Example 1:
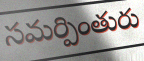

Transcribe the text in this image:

సమర్పింతురు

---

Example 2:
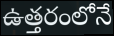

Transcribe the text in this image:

ఉత్తరంలోనే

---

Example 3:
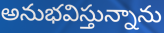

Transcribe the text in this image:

అనుభవిస్తున్నాను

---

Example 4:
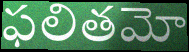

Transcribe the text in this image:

ఫలితమో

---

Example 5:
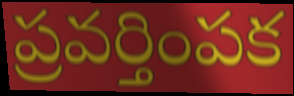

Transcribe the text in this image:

ప్రవర్తింపక